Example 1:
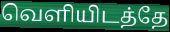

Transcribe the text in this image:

வெளியிடத்தே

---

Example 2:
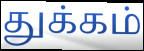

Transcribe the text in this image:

துக்கம்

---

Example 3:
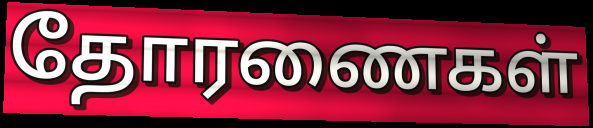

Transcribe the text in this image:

தோரணைகள்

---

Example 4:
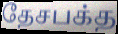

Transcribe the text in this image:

தேசபக்த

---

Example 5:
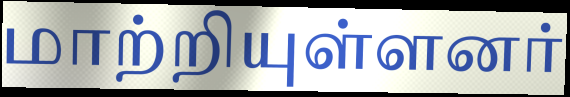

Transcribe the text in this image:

மாற்றியுள்ளனர்